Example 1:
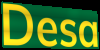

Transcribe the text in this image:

Desa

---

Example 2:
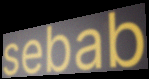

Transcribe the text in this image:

sebab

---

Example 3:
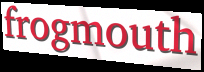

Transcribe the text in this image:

frogmouth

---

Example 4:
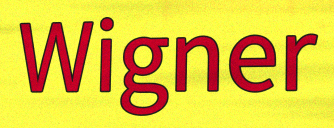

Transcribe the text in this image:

Wigner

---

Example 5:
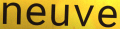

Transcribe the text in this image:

neuve